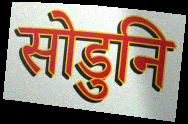
सोडुनि